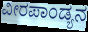
ವೀರಪಾಂಡ್ಯನ